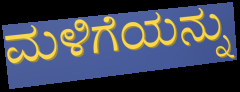
ಮಳಿಗೆಯನ್ನು